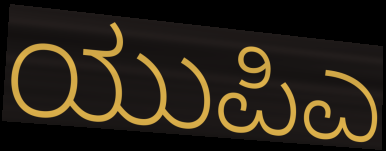
ಯುಪಿಎ